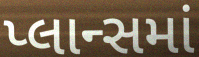
પ્લાન્સમાં